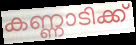
കണ്ണാടിക്ക്